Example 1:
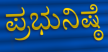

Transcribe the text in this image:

ಪ್ರಭುನಿಷ್ಠೆ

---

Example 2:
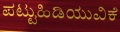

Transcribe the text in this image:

ಪಟ್ಟುಹಿಡಿಯುವಿಕೆ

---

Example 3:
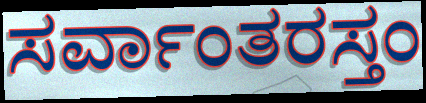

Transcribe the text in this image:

ಸರ್ವಾಂತರಸ್ತಂ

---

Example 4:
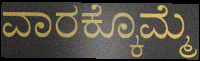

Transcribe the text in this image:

ವಾರಕ್ಕೊಮ್ಮೆ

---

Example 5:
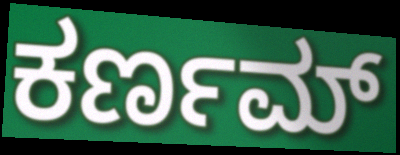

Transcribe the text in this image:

ಕರ್ಣಮ್